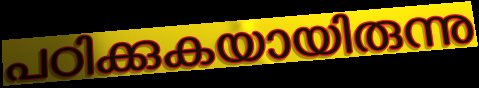
പഠിക്കുകയായിരുന്നു